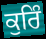
ਕੁਰਿੰ